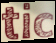
tic